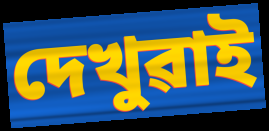
দেখুৱাই